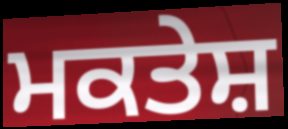
ਮਕਤੇਸ਼